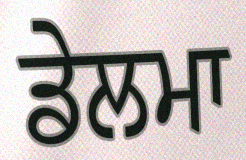
ਡੇਲਮਾ